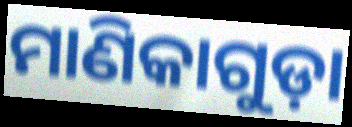
ମାଣିକାଗୁଡ଼ା